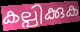
കല്പിക്കുക